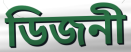
ডিজনী